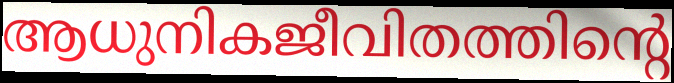
ആധുനികജീവിതത്തിന്റെ